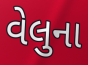
વેલુના